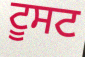
ਟੂਸਟ